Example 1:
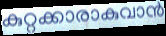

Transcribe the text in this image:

കുറ്റക്കാരാകുവാൻ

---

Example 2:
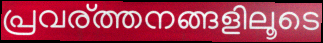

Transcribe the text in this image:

പ്രവര്ത്തനങ്ങളിലൂടെ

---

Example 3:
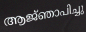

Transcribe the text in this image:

ആജ്‌ഞാപിച്ചു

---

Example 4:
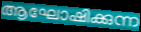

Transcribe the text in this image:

ആഘോഷിക്കുന്ന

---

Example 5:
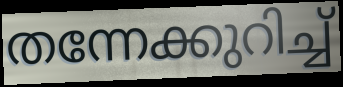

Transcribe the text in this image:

തന്നേക്കുറിച്ച്